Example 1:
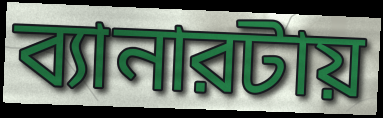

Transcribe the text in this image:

ব্যানারটায়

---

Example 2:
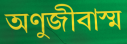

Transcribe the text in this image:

অণুজীবাস্ম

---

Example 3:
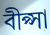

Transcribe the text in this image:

বীপ্সা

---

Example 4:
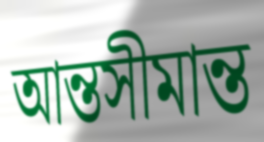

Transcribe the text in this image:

আন্তসীমান্ত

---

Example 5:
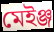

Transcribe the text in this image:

মেইঞ্জ